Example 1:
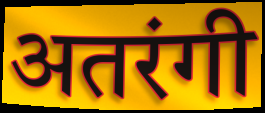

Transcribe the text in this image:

अतरंगी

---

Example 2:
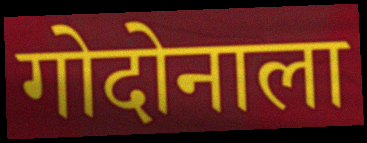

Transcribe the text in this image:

गोदोनाला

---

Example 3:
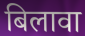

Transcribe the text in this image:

बिलावा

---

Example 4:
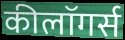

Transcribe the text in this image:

कीलॉगर्स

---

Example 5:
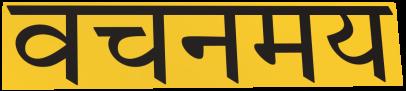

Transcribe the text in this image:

वचनमय